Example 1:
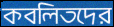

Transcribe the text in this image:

কবলিতদের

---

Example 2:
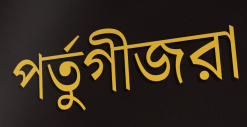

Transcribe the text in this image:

পর্তুগীজরা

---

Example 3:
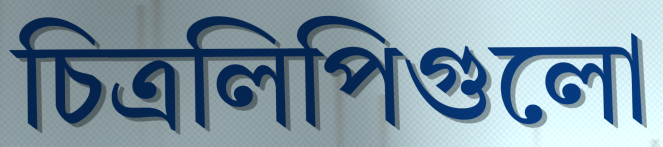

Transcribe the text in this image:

চিত্রলিপিগুলো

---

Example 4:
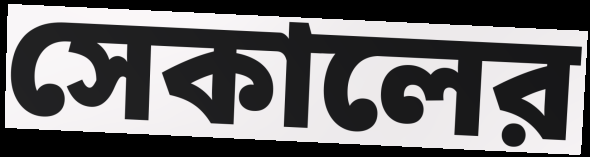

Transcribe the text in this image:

সেকালের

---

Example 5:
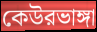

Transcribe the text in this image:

কেউরভাঙ্গা